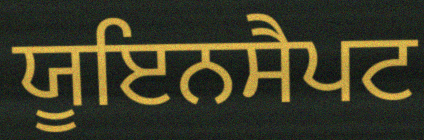
ਯੂਇਨਸੈਪਟ